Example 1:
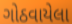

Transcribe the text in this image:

ગોઠવાયેલા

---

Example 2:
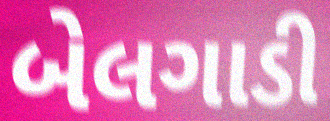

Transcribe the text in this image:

બેલગાડી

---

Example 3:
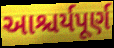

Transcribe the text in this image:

આશ્ચર્યપૂર્ણ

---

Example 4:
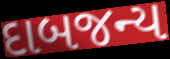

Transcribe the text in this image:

દાબજન્ય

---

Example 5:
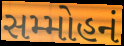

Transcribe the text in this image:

સમ્મોહનં